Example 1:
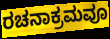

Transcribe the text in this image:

ರಚನಾಕ್ರಮವೂ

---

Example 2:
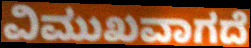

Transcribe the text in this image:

ವಿಮುಖವಾಗದೆ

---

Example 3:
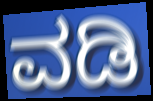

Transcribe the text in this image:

ವಡಿ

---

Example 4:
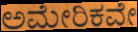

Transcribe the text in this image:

ಅಮೇರಿಕವೇ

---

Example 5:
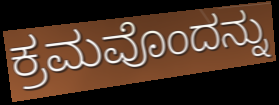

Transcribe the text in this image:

ಕ್ರಮವೊಂದನ್ನು